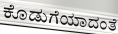
ಕೊಡುಗೆಯಾದಂತೆ